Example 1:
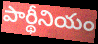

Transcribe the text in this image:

పార్థీనియం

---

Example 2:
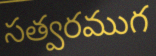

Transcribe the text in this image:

సత్వరముగ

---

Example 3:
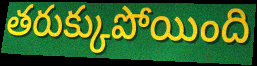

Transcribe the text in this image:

తరుక్కుపోయింది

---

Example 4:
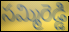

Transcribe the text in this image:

సమ్మిరెడ్డి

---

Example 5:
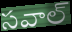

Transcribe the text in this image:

సవాల్